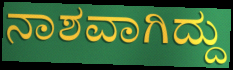
ನಾಶವಾಗಿದ್ದು